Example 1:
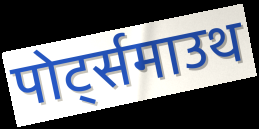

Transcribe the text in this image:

पोर्ट्समाउथ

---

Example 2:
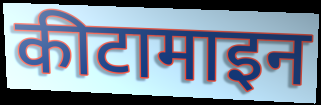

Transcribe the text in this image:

कीटामाइन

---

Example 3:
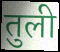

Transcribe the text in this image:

तुली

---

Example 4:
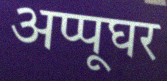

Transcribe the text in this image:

अप्पूघर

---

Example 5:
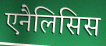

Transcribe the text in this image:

एनैलिसिस